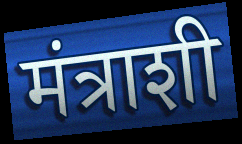
मंत्राशी